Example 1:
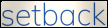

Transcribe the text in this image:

setback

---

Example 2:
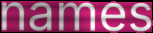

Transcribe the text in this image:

names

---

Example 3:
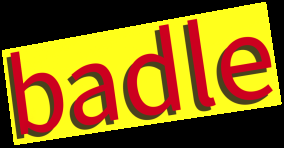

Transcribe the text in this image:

badle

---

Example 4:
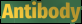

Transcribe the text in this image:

Antibody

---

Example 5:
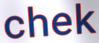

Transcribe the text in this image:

chek